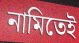
নামিতেই